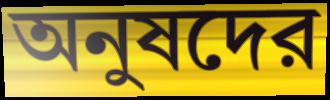
অনুষদের